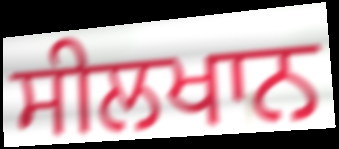
ਸੀਲਖਾਨ